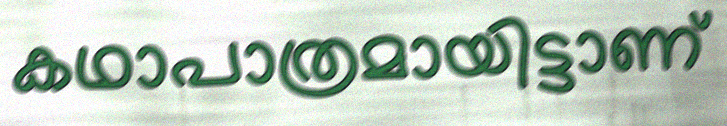
കഥാപാത്രമായിട്ടാണ്